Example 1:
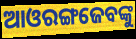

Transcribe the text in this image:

ଆଓରଙ୍ଗଜେବଙ୍କୁ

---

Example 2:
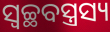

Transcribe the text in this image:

ସ୍ଵଚ୍ଛବସ୍ତ୍ରସ୍ୟ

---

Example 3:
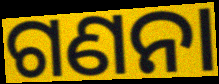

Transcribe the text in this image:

ଗଣନା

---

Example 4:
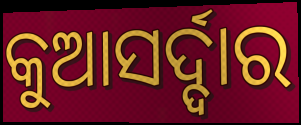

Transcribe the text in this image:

କୁଆସର୍ଦ୍ଦାର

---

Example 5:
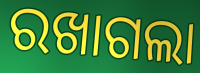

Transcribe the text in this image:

ରଖାଗଲା